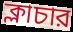
ক্লাচার